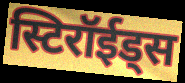
स्टिरॉईड्स